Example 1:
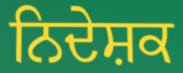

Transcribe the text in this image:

ਨਿਦੇਸ਼ਕ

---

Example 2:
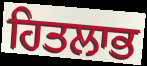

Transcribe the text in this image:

ਹਿਤਲਾਭ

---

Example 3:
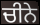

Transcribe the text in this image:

ਚੀਨੇ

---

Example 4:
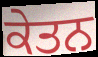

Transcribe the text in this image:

ਕੇਤਨ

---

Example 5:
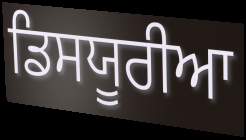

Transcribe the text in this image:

ਡਿਸਯੂਰੀਆ